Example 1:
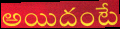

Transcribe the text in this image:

అయిదంటే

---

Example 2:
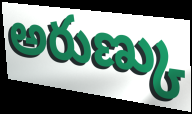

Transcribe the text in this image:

అరుణ్కు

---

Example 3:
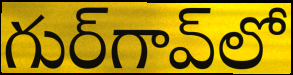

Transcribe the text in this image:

గుర్‌గావ్‌లో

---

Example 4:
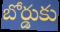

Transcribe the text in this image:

బోర్డుకు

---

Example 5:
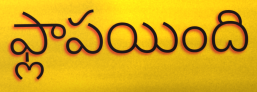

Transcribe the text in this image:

ఫ్లాపయింది